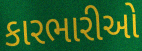
કારભારીઓ